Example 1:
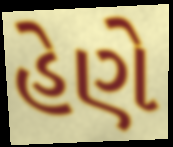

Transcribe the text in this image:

હેણે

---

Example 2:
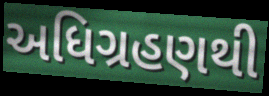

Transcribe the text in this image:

અધિગ્રહણથી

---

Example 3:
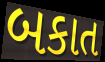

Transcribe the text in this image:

બકાત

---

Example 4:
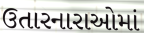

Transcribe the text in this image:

ઉતારનારાઓમાં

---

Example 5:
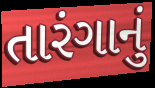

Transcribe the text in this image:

તારંગાનું